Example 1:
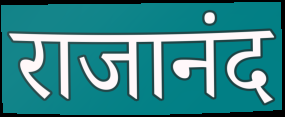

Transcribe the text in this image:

राजानंद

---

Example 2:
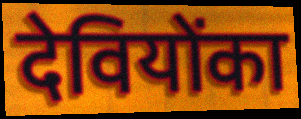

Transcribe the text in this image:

देवियोंका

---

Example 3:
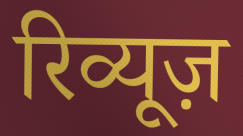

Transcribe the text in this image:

रिव्यूज़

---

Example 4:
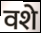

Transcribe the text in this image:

वशे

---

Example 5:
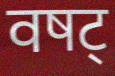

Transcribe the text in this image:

वषट्